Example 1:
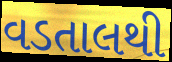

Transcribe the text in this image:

વડતાલથી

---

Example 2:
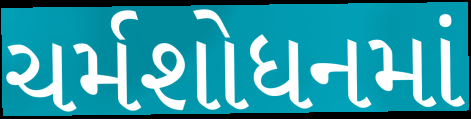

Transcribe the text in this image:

ચર્મશોધનમાં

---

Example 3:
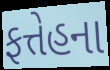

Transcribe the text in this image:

ફત્તેહના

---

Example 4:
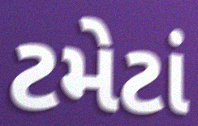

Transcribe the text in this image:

ટમેટાં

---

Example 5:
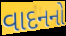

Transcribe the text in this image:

વાદનનો